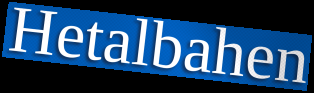
Hetalbahen